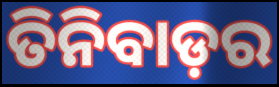
ତିନିବାଡ଼ର